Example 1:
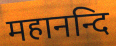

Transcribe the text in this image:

महानन्दि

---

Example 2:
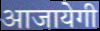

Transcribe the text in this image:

आजायेगी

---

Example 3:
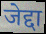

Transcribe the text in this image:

जेद्दा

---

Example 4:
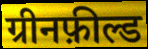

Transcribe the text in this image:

ग्रीनफ़ील्ड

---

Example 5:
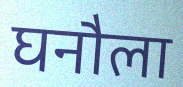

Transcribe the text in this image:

घनौला